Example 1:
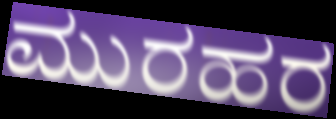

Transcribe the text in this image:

ಮುರಹರ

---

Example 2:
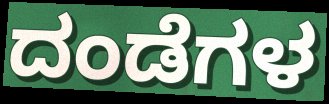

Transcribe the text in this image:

ದಂಡೆಗಳ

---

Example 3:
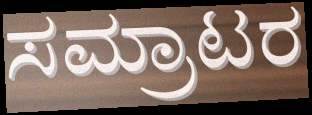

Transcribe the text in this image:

ಸಮ್ರಾಟರ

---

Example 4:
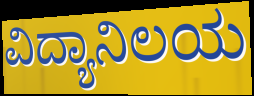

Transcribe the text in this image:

ವಿದ್ಯಾನಿಲಯ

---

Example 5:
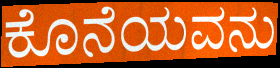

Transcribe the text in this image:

ಕೊನೆಯವನು